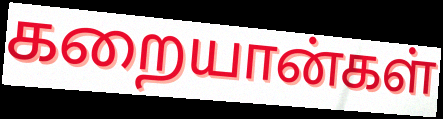
கறையான்கள்